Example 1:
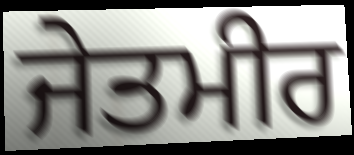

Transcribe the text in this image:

ਜੇਤਮੀਰ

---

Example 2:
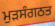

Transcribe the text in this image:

ਮੁੜਸੰਗਠਤ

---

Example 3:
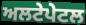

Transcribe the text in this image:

ਅਲਟੇਪੇਟਲ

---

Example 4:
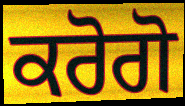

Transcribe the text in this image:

ਕਰੋਗੋ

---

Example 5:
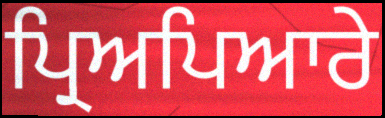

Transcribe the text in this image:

ਪ੍ਰਿਅਪਿਆਰੇ